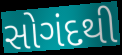
સોગંદથી